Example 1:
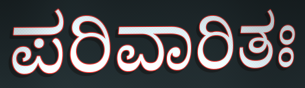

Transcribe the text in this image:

ಪರಿವಾರಿತಃ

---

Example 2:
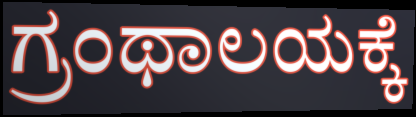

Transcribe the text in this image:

ಗ್ರಂಥಾಲಯಕ್ಕೆ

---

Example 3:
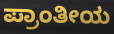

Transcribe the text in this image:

ಪ್ರಾಂತೀಯ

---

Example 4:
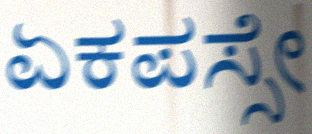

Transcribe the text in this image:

ಏಕಪಸ್ಸೇ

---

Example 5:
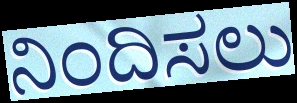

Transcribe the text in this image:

ನಿಂದಿಸಲು